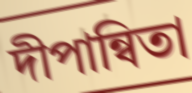
দীপান্বিতা